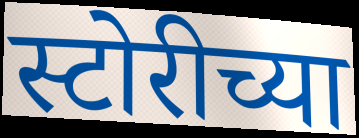
स्टोरीच्या